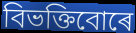
বিভক্তিবোৰে